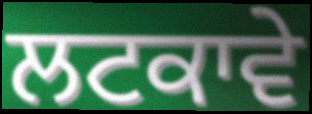
ਲਟਕਾਵੇ